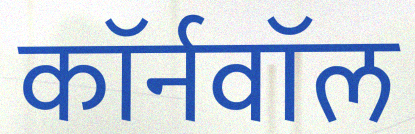
कॉर्नवॉल